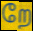
றே